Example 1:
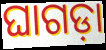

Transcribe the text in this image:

ଘାଗଡ଼ା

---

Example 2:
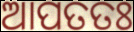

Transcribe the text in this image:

ଆପତତଃ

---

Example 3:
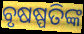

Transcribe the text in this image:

ବୃଷଷ୍ପତିଙ୍କ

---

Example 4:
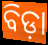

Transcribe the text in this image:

ବିଡ଼ା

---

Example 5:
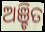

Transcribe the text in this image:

ଅଞ୍ଚିତ